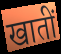
खातीं